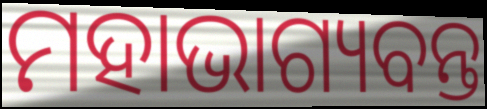
ମହାଭାଗ୍ୟବନ୍ତ